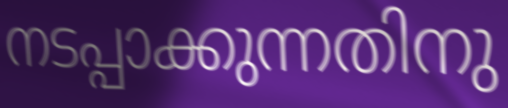
നടപ്പാക്കുന്നതിനു